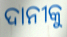
ଦାନୀକୁ